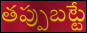
తప్పుబట్టే